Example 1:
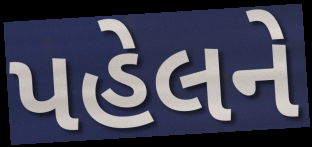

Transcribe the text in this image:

પહેલને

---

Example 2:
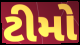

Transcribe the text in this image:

ટીમો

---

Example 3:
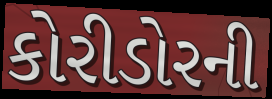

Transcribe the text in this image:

કોરીડોરની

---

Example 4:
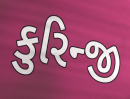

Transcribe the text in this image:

કુરિન્જી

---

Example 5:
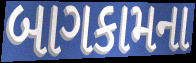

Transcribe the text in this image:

બાગકામના